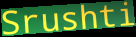
Srushti